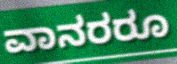
ವಾನರರೂ